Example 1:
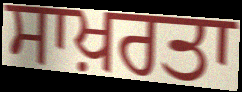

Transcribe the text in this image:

ਸਾਖ਼ਰਤਾ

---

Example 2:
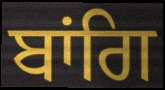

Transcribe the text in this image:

ਬਾਂਗਿ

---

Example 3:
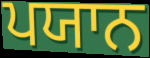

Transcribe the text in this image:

ਪਯਾਨ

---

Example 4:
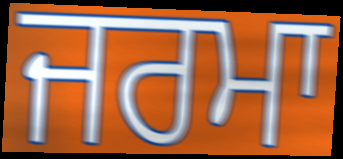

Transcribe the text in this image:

ਜਰਮਾ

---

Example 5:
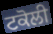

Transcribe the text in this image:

ਟਕੋਲੀ